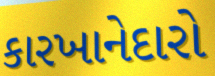
કારખાનેદારો